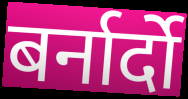
बर्नार्दो